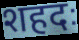
शहदः